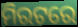
ମିରଟରେ